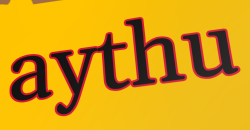
aythu